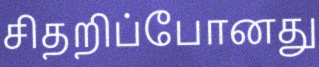
சிதறிப்போனது